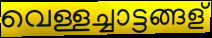
വെള്ളച്ചാട്ടങ്ങള്